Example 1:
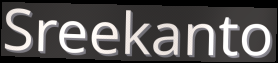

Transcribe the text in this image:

Sreekanto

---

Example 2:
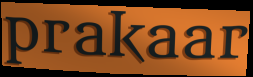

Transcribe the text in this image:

prakaar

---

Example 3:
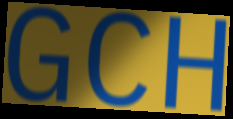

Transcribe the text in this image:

GCH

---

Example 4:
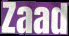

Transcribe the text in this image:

Zaad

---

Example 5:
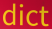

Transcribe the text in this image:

dict